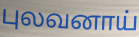
புலவனாய்